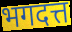
भगदत्त